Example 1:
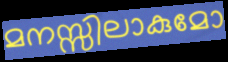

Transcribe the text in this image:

മനസ്സിലാകുമോ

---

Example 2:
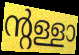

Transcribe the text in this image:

ന്റള്ളാ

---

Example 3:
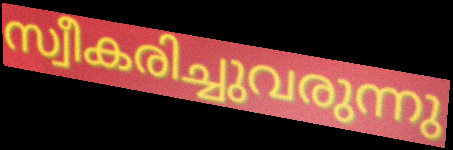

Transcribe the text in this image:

സ്വീകരിച്ചുവരുന്നു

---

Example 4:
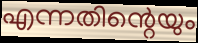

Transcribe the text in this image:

എന്നതിന്റെയും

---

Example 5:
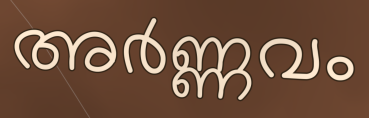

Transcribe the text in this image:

അർണ്ണവം